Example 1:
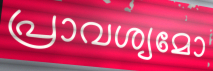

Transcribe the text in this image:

പ്രാവശ്യമോ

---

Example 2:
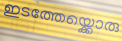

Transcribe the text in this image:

ഇടത്തേയ്ക്കൊരു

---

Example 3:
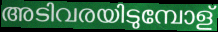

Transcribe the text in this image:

അടിവരയിടുമ്പോള്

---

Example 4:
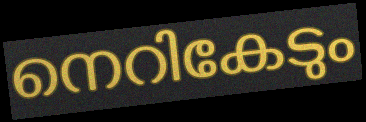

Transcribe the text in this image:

നെറികേടും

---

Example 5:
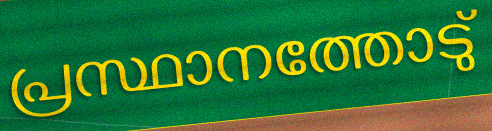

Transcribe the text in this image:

പ്രസ്ഥാനത്തോടു്